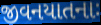
જીવનયાતનાઃ